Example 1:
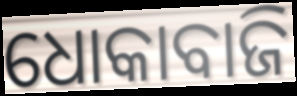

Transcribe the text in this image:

ଧୋକାବାଜି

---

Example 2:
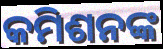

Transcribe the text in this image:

କମିଶନଙ୍କ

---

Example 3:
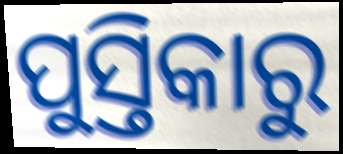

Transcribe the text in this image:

ପୁସ୍ତିକାରୁ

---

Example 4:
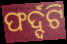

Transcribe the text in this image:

ଫର୍ଦ୍ଦଟି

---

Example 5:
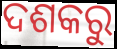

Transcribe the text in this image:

ଦଶକରୁ